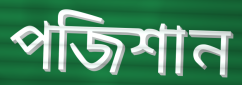
পজিশান